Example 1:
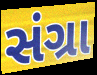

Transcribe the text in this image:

સંગ્રા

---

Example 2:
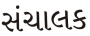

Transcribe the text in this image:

સંચાલક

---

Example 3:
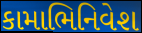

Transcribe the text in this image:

કામાભિનિવેશ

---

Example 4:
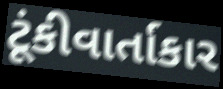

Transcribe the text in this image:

ટૂંકીવાર્તાકાર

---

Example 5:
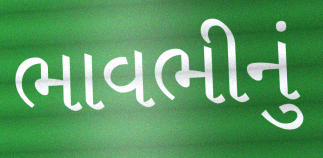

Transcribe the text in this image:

ભાવભીનું